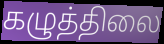
கழுத்திலை